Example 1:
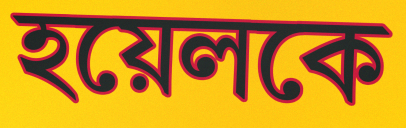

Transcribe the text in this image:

হয়েলকে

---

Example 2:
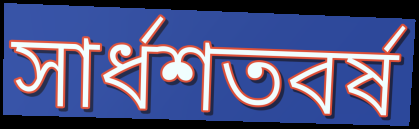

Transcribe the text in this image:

সার্ধশতবর্ষ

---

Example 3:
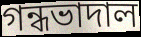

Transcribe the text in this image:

গন্ধভাদাল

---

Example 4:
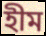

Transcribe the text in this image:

হীম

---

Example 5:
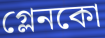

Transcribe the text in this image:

গ্লেনকো